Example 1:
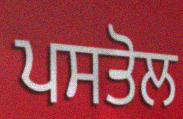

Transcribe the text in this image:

ਪਸਤੋਲ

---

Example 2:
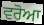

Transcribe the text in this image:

ਵਰੋਆ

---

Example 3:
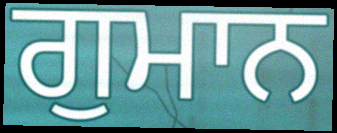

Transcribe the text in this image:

ਗੁਮਾਨ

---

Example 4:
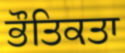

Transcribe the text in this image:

ਭੌਤਿਕਤਾ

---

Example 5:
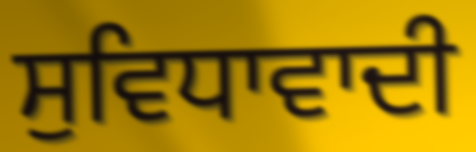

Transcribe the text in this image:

ਸੁਵਿਧਾਵਾਦੀ